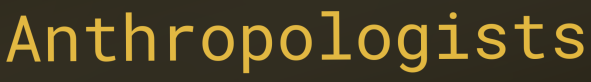
Anthropologists